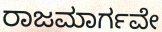
ರಾಜಮಾರ್ಗವೇ